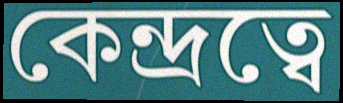
কেন্দ্রত্বে